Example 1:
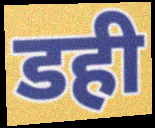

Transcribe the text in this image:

डही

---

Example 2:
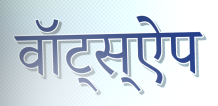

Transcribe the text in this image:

वॉट्स्ऐप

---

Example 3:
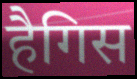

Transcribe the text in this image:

हैगिस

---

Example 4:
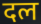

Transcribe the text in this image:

दल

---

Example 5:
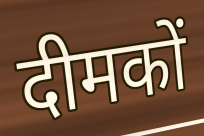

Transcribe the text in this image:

दीमकों